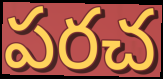
పరచ